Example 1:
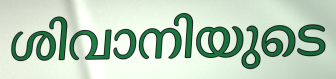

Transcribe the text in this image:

ശിവാനിയുടെ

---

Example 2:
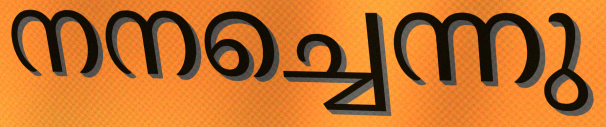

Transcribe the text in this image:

നനച്ചെന്നു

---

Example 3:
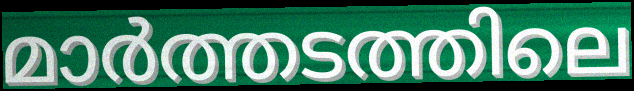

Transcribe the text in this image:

മാർത്തടത്തിലെ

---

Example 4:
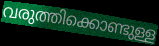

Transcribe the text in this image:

വരുത്തിക്കൊണ്ടുള്ള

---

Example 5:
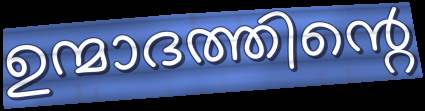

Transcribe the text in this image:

ഉന്മാദത്തിന്റെ